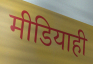
मीडियाही